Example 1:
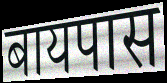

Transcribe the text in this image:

बायपास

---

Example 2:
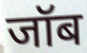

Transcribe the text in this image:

जॉब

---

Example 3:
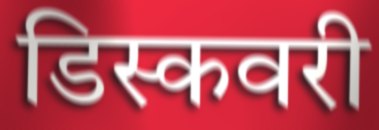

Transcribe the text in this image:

डिस्कवरी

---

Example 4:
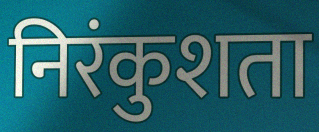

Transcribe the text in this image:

निरंकुशता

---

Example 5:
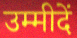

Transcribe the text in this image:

उम्मीदें